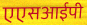
एएसआईपी